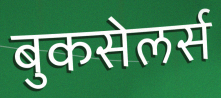
बुकसेलर्स